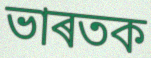
ভাৰতক